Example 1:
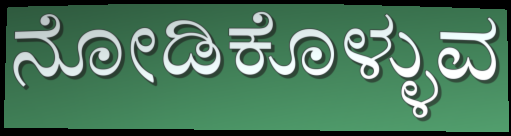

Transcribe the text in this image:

ನೋಡಿಕೊಳ್ಳುವ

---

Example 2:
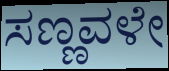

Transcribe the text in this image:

ಸಣ್ಣವಳೇ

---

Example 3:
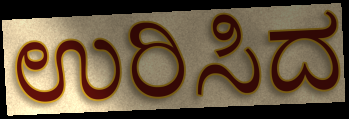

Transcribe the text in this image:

ಉರಿಸಿದ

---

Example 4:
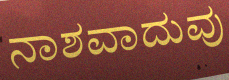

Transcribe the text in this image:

ನಾಶವಾದುವು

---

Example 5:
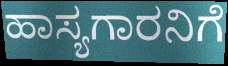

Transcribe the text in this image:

ಹಾಸ್ಯಗಾರನಿಗೆ